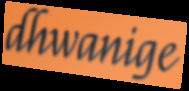
dhwanige